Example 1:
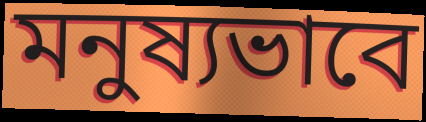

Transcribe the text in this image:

মনুষ্যভাবে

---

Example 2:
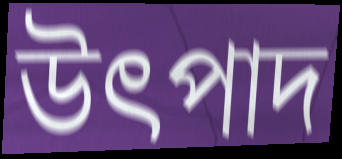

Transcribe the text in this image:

উৎপাদ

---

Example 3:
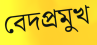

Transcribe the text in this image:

বেদপ্রমুখ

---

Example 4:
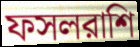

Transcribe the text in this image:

ফসলরাশি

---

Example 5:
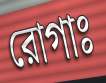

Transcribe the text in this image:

রোগাঃ